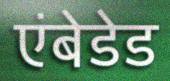
एंबेडेड